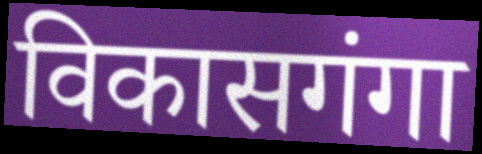
विकासगंगा